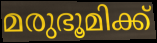
മരുഭൂമിക്ക്